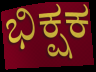
ಭಿಕ್ಷಕ